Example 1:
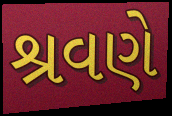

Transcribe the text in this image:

શ્રવણે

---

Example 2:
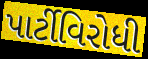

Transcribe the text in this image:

પાર્ટીવિરોધી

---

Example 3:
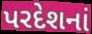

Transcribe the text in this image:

પરદેશનાં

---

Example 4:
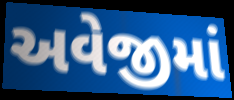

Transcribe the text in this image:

અવેજીમાં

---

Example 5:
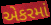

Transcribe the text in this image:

એકરમાં